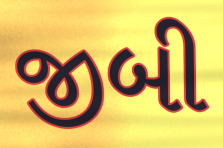
જીબી